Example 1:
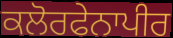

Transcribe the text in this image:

ਕਲੋਰਫੇਨਾਪੀਰ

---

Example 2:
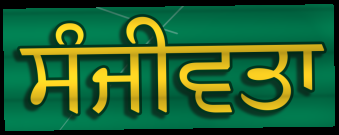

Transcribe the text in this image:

ਸੰਜੀਵਤਾ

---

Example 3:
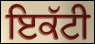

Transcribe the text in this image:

ਇਕੱਟੀ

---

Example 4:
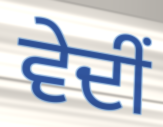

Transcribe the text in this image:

ਵੇਦੀਂ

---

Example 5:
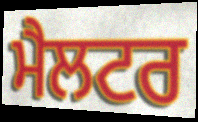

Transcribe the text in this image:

ਮੈਲਟਰ